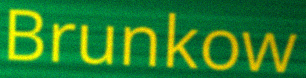
Brunkow